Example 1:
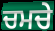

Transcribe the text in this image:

ਚਮਚੇ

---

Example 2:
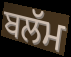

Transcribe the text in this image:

ਬਲੱਮ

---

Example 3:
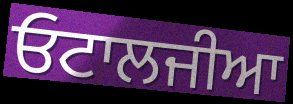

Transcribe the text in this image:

ਓਟਾਲਜੀਆ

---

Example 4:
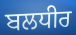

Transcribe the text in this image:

ਬਲਧੀਰ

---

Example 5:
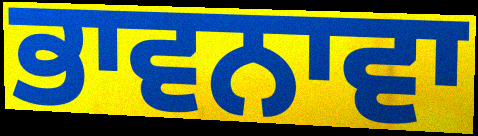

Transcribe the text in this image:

ਭਾਵਨਾਵਾ